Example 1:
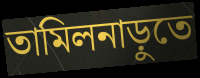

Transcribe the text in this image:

তামিলনাড়ুতে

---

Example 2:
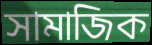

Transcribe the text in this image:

সামাজিক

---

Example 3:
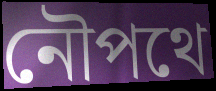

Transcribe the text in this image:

নৌপথে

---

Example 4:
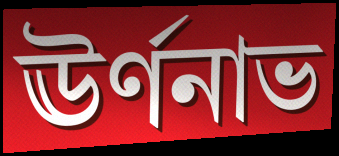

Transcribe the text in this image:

ঊর্ণনাভ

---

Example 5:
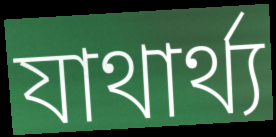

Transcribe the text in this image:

যাথার্থ্য